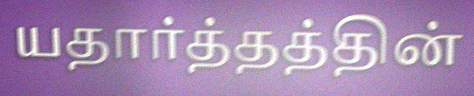
யதார்த்தத்தின்